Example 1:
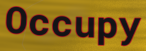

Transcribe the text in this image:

Occupy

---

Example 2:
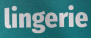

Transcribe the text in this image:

lingerie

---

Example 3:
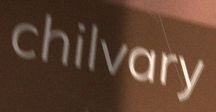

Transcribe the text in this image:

chilvary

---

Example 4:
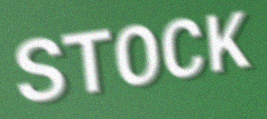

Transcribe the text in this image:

STOCK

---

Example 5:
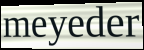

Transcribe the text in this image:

meyeder